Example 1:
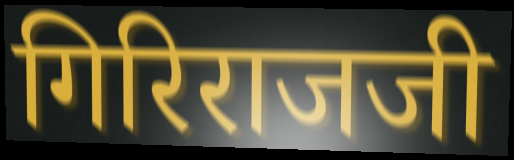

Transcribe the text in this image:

गिरिराजजी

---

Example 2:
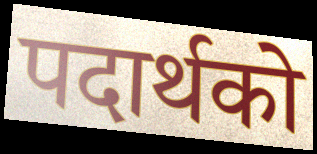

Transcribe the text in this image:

पदार्थको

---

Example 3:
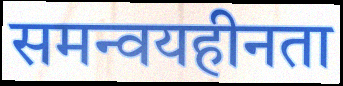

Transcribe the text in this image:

समन्वयहीनता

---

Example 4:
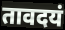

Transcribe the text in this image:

तावदयं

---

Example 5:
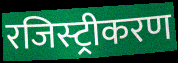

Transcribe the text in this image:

रजिस्‍ट्रीकरण